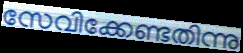
സേവിക്കേണ്ടതിന്നു